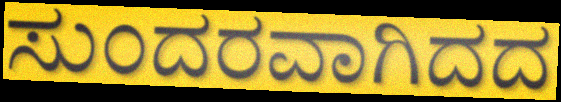
ಸುಂದರವಾಗಿದದ